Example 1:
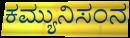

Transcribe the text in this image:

ಕಮ್ಯುನಿಸಂನ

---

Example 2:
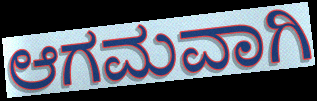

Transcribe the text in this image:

ಆಗಮವಾಗಿ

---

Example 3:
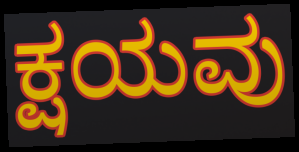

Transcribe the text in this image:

ಕ್ಷಯವು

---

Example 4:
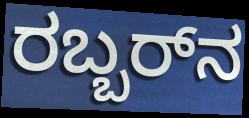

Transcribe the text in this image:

ರಬ್ಬರ್‌ನ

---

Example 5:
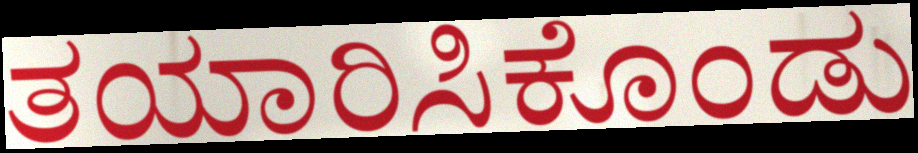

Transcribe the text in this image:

ತಯಾರಿಸಿಕೊಂಡು